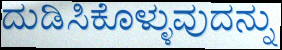
ದುಡಿಸಿಕೊಳ್ಳುವುದನ್ನು